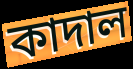
কাদাল